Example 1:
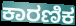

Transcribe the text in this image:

ಕಾರಣಿಕ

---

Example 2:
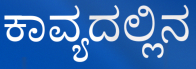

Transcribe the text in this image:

ಕಾವ್ಯದಲ್ಲಿನ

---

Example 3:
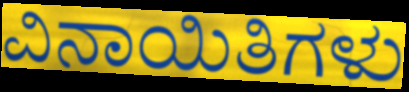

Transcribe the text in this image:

ವಿನಾಯಿತಿಗಳು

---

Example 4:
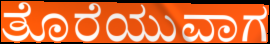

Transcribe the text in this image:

ತೊರೆಯುವಾಗ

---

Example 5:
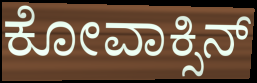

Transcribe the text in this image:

ಕೋವಾಕ್ಸಿನ್